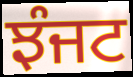
ਝੰਜਟ